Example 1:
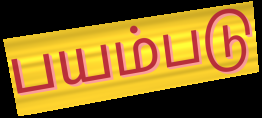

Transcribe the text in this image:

பயம்படு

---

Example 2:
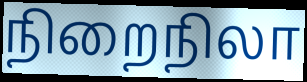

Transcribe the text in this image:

நிறைநிலா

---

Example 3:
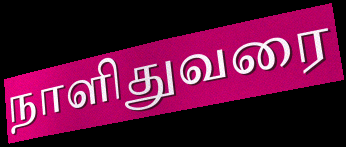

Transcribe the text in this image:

நாளிதுவரை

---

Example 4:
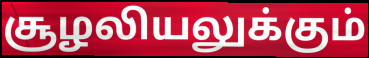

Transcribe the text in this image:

சூழலியலுக்கும்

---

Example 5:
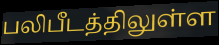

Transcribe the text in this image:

பலிபீடத்திலுள்ள